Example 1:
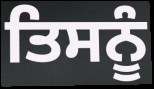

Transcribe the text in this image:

ਤਿਸਨੂੰ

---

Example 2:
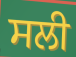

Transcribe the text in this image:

ਸਲੀ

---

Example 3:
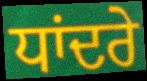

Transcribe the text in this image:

ਧਾਂਦਰੇ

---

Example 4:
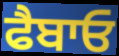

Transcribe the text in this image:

ਫੈਬਾਓ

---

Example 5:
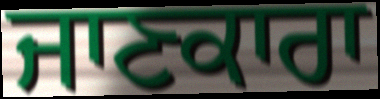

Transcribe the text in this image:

ਜਾਣਕਾਰਾ